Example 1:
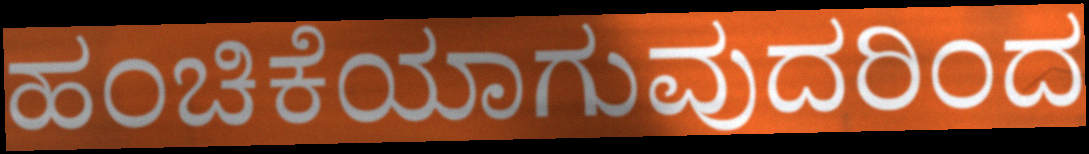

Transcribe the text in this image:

ಹಂಚಿಕೆಯಾಗುವುದರಿಂದ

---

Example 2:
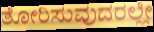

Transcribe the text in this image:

ತೋರಿಸುವುದರಲ್ಲೇ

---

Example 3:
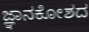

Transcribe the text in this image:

ಜ್ಞಾನಕೋಶದ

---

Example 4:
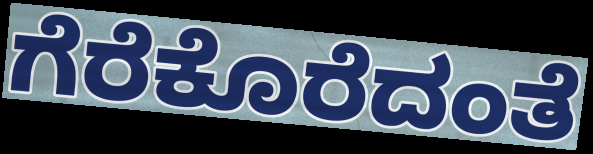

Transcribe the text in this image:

ಗೆರೆಕೊರೆದಂತೆ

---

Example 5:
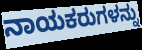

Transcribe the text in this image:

ನಾಯಕರುಗಳನ್ನು